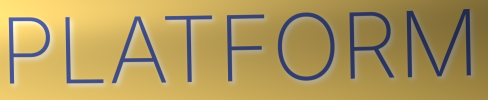
PLATFORM